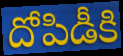
దోపిడీకి